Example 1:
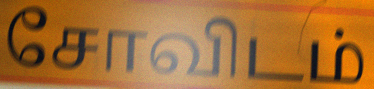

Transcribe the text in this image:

சோவிடம்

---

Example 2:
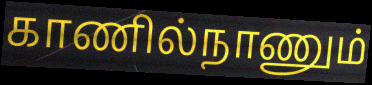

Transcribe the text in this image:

காணில்நாணும்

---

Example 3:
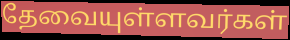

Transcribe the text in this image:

தேவையுள்ளவர்கள்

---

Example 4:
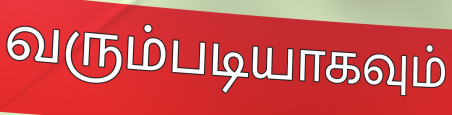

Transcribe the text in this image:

வரும்படியாகவும்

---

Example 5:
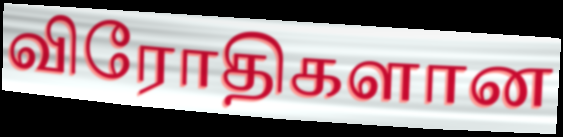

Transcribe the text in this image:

விரோதிகளான